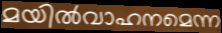
മയിൽവാഹനമെന്ന